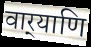
वार्याणि